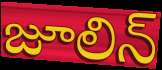
జూలిన్